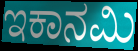
ಇಕಾನಮಿ